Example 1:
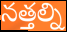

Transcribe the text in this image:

నత్తల్ని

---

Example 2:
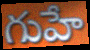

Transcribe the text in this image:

గుహే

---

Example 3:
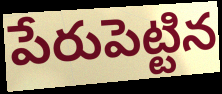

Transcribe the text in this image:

పేరుపెట్టిన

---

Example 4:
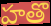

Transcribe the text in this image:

హతొ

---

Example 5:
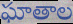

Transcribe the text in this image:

ఘాతాల